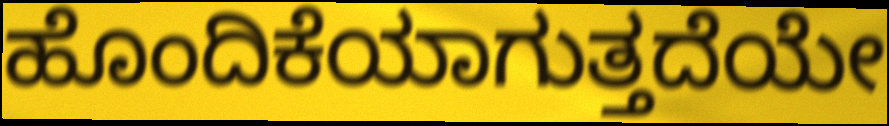
ಹೊಂದಿಕೆಯಾಗುತ್ತದೆಯೇ